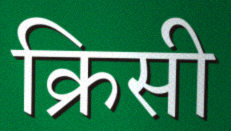
क्रिसी